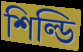
শিল্ডি